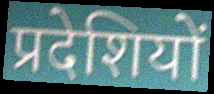
प्रदेशियों